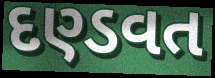
દણ્ડવત